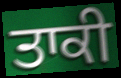
ਤਾਕੀ